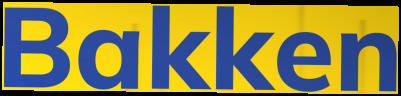
Bakken